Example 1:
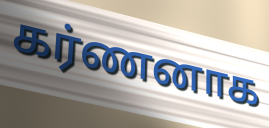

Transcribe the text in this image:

கர்ணனாக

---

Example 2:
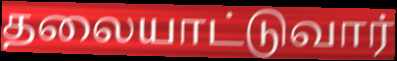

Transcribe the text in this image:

தலையாட்டுவார்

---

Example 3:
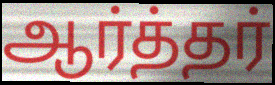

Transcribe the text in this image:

ஆர்த்தர்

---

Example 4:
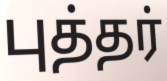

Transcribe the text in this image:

புத்தர்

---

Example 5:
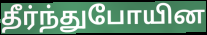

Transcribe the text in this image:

தீர்ந்துபோயின